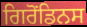
ਗਿਰੋਂਡਿਨਸ